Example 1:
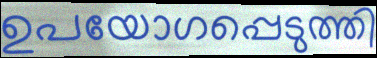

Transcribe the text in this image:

ഉപയോഗപ്പെടുത്തി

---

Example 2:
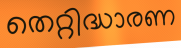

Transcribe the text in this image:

തെറ്റിദ്ധാരണ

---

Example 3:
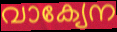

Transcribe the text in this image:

വാക്യേന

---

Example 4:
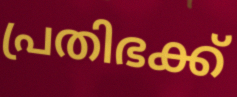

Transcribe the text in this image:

പ്രതിഭക്ക്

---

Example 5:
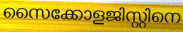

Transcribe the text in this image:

സൈക്കോളജിസ്റ്റിനെ